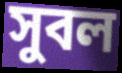
সুবল